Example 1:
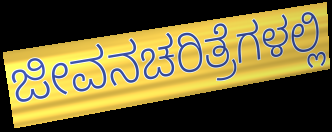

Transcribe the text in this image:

ಜೀವನಚರಿತ್ರೆಗಳಲ್ಲಿ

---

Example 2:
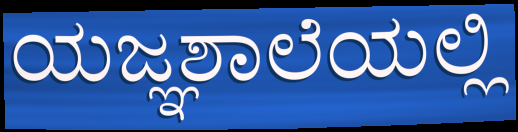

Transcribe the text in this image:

ಯಜ್ಞಶಾಲೆಯಲ್ಲಿ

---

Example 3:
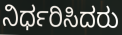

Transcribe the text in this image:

ನಿರ್ಧರಿಸಿದರು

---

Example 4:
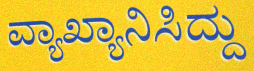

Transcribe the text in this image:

ವ್ಯಾಖ್ಯಾನಿಸಿದ್ದು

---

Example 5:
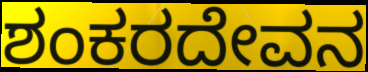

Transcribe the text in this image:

ಶಂಕರದೇವನ